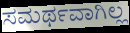
ಸಮರ್ಥವಾಗಿಲ್ಲ